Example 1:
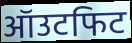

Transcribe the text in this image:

ऑउटफिट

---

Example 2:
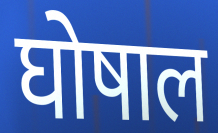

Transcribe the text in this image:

घोषाल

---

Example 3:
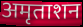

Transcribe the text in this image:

अमृताशन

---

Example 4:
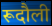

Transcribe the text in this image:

रूदौली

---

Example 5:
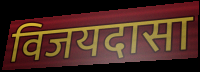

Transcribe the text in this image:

विजयदासा